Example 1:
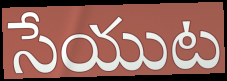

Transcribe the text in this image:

సేయుట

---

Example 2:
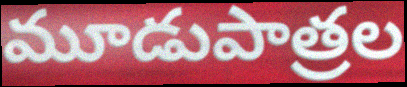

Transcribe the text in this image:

మూడుపాత్రల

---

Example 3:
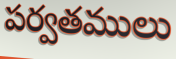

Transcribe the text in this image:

పర్వతములు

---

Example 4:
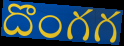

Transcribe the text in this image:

దొంగగ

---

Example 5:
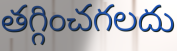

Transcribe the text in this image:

తగ్గించగలదు